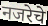
नजरेचे